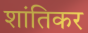
शांतिकर